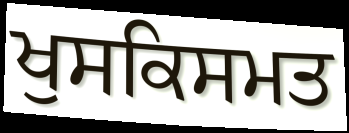
ਖੁਸਕਿਸਮਤ